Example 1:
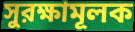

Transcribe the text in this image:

সুরক্ষামূলক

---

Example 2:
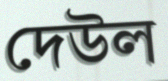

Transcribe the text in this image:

দেউল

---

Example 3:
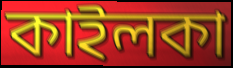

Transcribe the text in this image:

কাইলকা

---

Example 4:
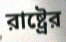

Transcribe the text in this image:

রাষ্ট্রের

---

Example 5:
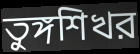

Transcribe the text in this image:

তুঙ্গশিখর